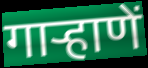
गार्‍हाणें